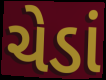
ચેડાં